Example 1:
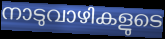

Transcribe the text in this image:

നാടുവാഴികളുടെ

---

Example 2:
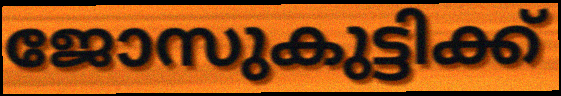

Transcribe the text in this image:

ജോസുകുട്ടിക്ക്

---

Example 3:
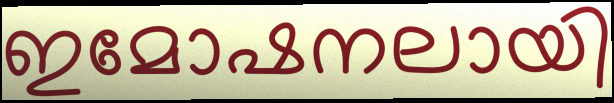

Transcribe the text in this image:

ഇമോഷനലായി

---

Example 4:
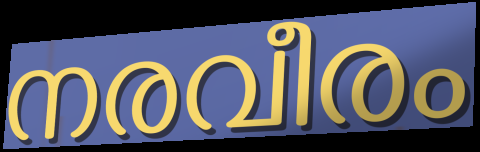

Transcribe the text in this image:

നരവീരം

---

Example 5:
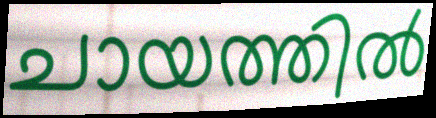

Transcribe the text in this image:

ചായത്തിൽ